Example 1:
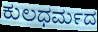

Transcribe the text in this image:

ಕುಲಧರ್ಮದ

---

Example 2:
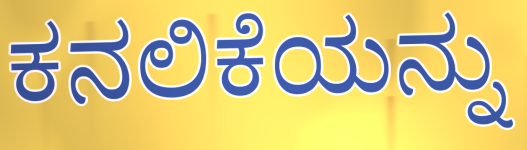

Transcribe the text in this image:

ಕನಲಿಕೆಯನ್ನು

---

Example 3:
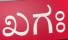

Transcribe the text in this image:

ಖಗಃ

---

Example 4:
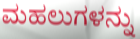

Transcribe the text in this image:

ಮಹಲುಗಳನ್ನು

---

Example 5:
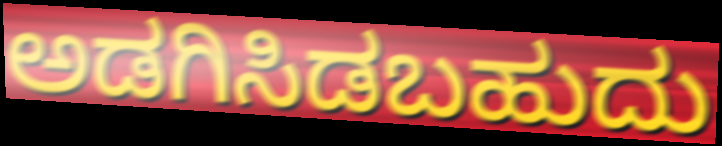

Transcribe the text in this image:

ಅಡಗಿಸಿಡಬಹುದು